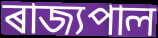
ৰাজ্যপাল